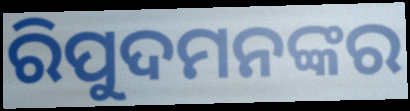
ରିପୁଦମନଙ୍କର